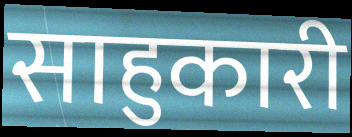
साहुकारी